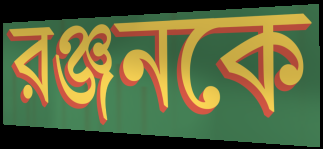
রঞ্জনকে